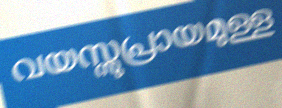
വയസ്സുപ്രായമുള്ള